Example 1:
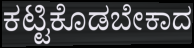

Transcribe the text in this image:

ಕಟ್ಟಿಕೊಡಬೇಕಾದ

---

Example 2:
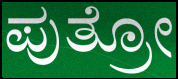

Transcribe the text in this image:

ಪುತ್ರೋ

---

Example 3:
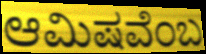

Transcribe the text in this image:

ಆಮಿಷವೆಂಬ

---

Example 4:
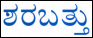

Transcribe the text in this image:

ಶರಬತ್ತು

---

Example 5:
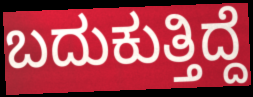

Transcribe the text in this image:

ಬದುಕುತ್ತಿದ್ದೆ